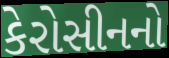
કેરોસીનનો